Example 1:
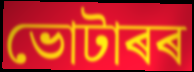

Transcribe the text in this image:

ভোটাৰৰ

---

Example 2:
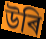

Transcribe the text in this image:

উৰি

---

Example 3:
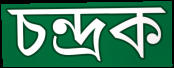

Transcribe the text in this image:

চন্দ্ৰক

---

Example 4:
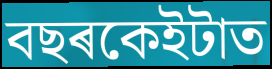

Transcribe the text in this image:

বছৰকেইটাত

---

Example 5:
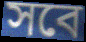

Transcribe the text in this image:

সবে